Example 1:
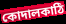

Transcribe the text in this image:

কোদালকাঠি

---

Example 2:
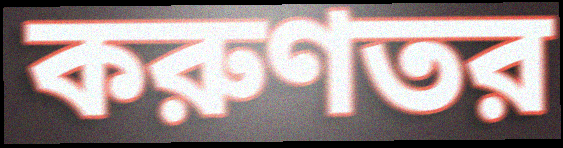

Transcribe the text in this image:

করুণতর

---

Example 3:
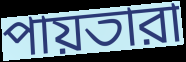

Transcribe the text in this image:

পায়তারা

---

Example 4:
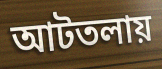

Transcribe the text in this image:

আটতলায়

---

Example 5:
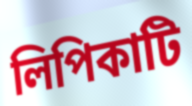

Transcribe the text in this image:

লিপিকাটি